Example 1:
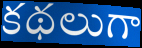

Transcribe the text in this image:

కథలుగా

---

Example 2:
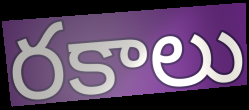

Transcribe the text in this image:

రకాలు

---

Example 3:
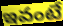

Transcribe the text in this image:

ఇవంటే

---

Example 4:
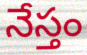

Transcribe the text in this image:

నేస్తం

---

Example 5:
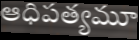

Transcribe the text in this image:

ఆధిపత్యమూ